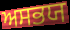
ਅਸਭਯ